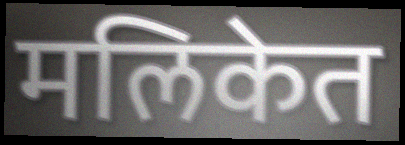
मलिकेत